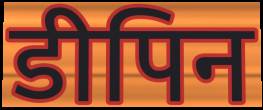
डीपिन